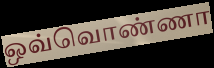
ஒவ்வொண்ணா